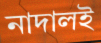
নাদালই